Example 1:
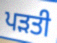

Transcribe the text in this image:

ਪੜਤੀ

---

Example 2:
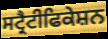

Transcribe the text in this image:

ਸਟ੍ਰੈਟੀਫਿਕੇਸ਼ਨ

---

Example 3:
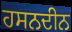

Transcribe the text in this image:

ਹਸਨਦੀਨ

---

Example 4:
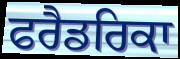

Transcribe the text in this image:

ਫਰੈਡਰਿਕਾ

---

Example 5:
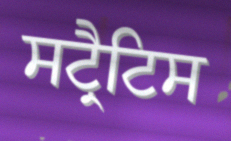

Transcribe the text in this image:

ਸਟ੍ਰੈਟਿਸ